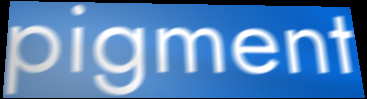
pigment